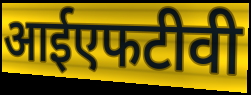
आईएफटीवी